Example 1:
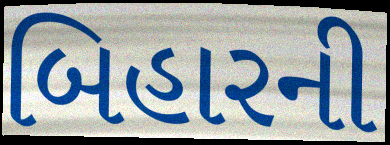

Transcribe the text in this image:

બિહારની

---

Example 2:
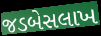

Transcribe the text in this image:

જડબેસલાખ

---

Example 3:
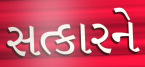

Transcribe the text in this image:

સત્કારને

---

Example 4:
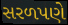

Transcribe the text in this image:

સરળપણે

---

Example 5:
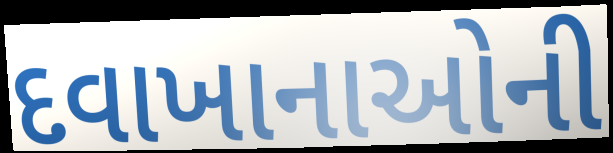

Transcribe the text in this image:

દવાખાનાઓની